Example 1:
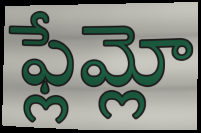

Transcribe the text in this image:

ఫ్లేమ్లో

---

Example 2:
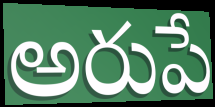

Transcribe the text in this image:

అరుపే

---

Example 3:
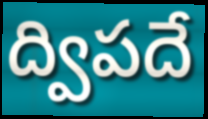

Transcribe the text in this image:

ద్విపదే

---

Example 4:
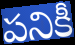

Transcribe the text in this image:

పనికీ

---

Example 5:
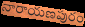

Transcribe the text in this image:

నారాయణపురం